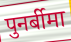
पुनर्बीमा